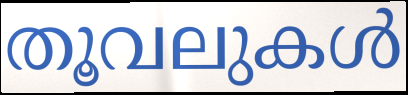
തൂവലുകൾ